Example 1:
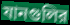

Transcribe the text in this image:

যানগুলির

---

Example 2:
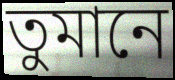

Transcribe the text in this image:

তুমানে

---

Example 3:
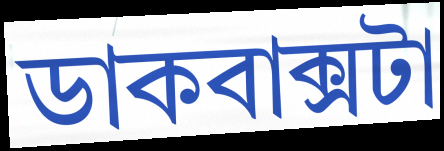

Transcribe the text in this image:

ডাকবাক্সটা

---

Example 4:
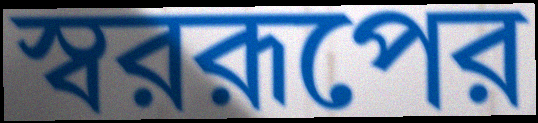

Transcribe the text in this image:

স্বররূপের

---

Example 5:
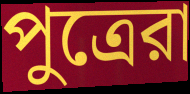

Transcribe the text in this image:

পুত্রেরা